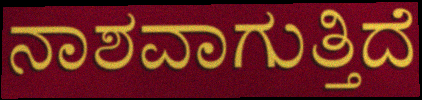
ನಾಶವಾಗುತ್ತಿದೆ